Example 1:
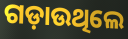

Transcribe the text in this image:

ଗଡ଼ାଉଥିଲେ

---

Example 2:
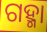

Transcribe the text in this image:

ଗହ୍ମା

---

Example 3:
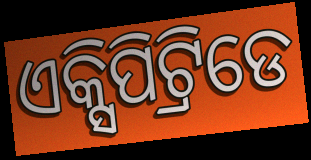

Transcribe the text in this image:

ଏକ୍ସିପିଟ୍ରିଡେ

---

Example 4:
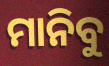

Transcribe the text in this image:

ମାନିବୁ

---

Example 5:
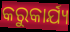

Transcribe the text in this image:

କରୁକାର୍ଯ୍ୟ